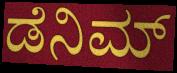
ಡೆನಿಮ್